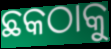
ଛକଠାକୁ